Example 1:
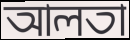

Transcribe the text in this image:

আলতা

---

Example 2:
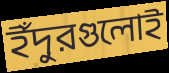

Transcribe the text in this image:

ইঁদুরগুলোই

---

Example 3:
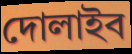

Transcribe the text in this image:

দোলাইব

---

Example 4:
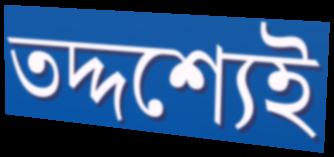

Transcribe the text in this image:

তদ্দশ্যেই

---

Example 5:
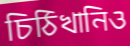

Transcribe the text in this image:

চিঠিখানিও